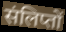
संलिप्तों